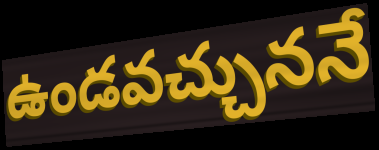
ఉండవచ్చుననే